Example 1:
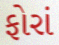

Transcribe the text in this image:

ફોરાં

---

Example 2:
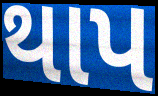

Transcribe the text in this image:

થાપ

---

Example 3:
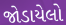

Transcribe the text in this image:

જોડાયેલો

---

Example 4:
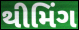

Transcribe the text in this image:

થીમિંગ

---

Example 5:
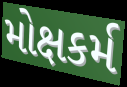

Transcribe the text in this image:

મોક્ષકર્મ